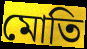
মোতি